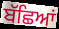
ਬੱਛਿਆਂ